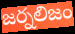
జర్నలిజం